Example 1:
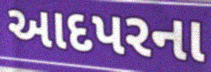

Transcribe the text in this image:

આદપરના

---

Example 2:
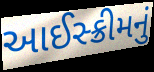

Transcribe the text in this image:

આઈસ્ક્રીમનું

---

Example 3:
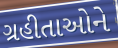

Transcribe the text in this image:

ગ્રહીતાઓને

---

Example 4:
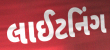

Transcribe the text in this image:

લાઈટનિંગ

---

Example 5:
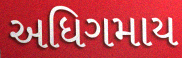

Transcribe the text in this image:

અધિગમાય